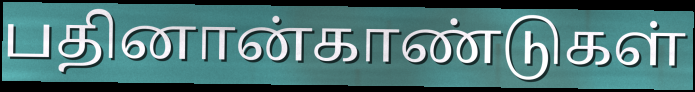
பதினான்காண்டுகள்